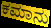
ಕಮಾನು